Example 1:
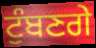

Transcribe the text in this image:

ਟੁੰਬਣਗੇ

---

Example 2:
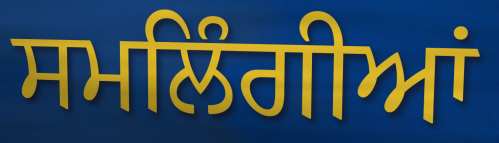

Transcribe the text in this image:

ਸਮਲਿੰਗੀਆਂ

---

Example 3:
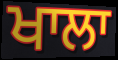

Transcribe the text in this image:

ਖਾਲਾ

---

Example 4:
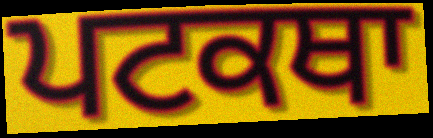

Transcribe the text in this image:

ਪਟਕਥਾ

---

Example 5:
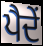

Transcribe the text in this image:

ਪੈਦੇਂ